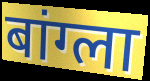
बांग्ला